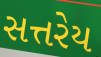
સત્તરેય